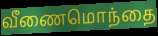
வீணைமொந்தை